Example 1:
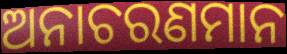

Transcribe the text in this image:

ଅନାଚରଣମାନ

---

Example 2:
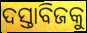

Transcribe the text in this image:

ଦସ୍ତାବିଜକୁ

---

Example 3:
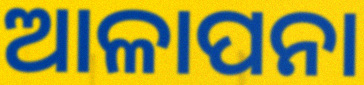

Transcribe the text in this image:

ଆଳାପନା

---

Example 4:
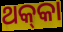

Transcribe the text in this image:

ଥକ୍‍କା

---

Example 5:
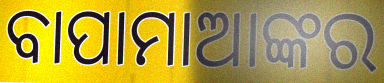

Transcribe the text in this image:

ବାପାମାଆଙ୍କର